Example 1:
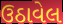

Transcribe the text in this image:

ઉઠાવેલ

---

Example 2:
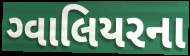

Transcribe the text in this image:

ગ્વાલિયરના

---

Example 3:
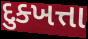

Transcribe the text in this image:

દુક્ખત્તા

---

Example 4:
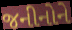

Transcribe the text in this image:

જનીનોને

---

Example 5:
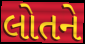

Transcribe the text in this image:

લોતને